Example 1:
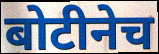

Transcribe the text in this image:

बोटीनेच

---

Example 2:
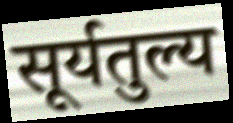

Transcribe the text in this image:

सूर्यतुल्य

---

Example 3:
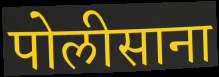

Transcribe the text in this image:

पोलीसाना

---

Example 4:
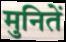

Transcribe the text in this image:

मुनितें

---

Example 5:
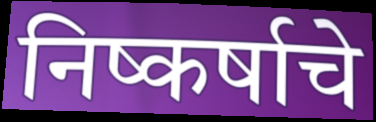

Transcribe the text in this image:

निष्कर्षाचे